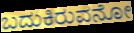
ಬದುಕಿರುವನೋ